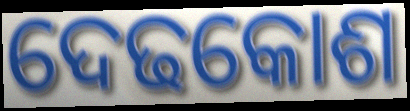
ଦେଢକୋଶ